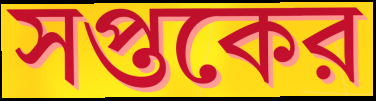
সপ্তকের